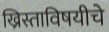
ख्रिस्ताविषयीचे